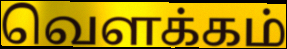
வெளக்கம்